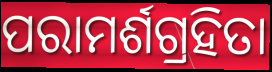
ପରାମର୍ଶଗ୍ରହିତା